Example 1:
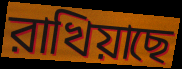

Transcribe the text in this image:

রাখিয়াছে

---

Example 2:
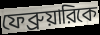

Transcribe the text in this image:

ফেব্রুয়ারিকে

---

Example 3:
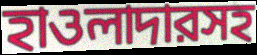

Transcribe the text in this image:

হাওলাদারসহ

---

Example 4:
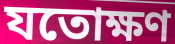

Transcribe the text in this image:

যতোক্ষণ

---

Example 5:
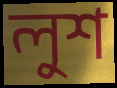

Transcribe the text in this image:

লুশ